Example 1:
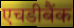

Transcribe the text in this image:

एचडीबैंक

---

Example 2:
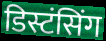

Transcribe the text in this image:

डिस्टंसिंग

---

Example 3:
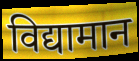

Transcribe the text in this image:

विद्यामान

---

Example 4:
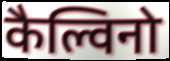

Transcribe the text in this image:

कैल्विनो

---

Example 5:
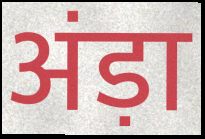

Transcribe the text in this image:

अंड़ा